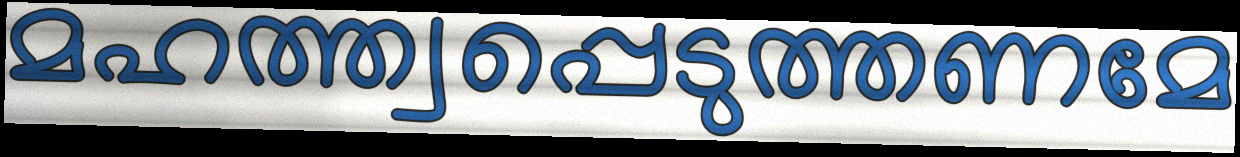
മഹത്ത്വപ്പെടുത്തണമേ